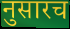
नुसारच